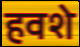
हवशे